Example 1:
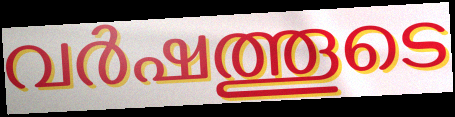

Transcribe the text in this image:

വർഷത്തൂടെ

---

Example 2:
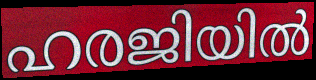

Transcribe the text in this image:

ഹരജിയിൽ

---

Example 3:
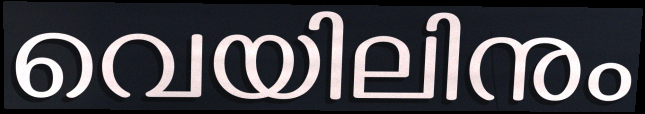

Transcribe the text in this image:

വെയിലിനും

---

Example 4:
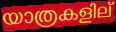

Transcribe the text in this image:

യാത്രകളില്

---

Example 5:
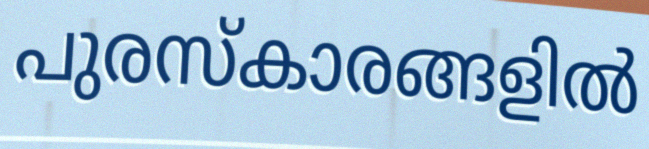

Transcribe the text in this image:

പുരസ്കാരങ്ങളിൽ